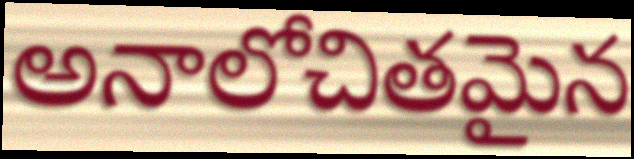
అనాలోచితమైన